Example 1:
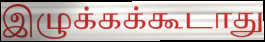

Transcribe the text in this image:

இழுக்கக்கூடாது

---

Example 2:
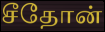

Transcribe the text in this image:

சீதோன்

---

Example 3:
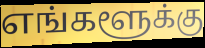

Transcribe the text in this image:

எங்களூக்கு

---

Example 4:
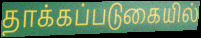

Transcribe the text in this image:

தாக்கப்படுகையில்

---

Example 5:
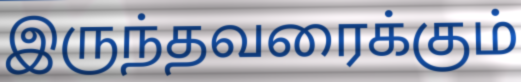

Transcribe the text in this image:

இருந்தவரைக்கும்